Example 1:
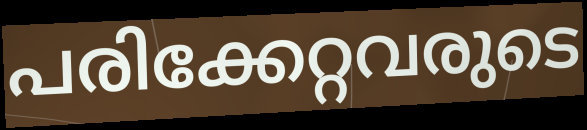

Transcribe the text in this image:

പരിക്കേറ്റവരുടെ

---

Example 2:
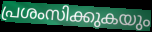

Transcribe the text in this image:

പ്രശംസിക്കുകയും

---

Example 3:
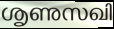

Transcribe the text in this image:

ശൃണുസഖി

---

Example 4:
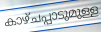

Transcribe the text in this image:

കാഴ്ചപ്പാടുമുള്ള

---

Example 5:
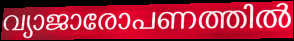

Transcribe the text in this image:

വ്യാജാരോപണത്തിൽ